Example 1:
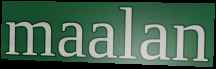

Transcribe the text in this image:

maalan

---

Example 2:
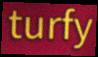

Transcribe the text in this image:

turfy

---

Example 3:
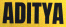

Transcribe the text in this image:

ADITYA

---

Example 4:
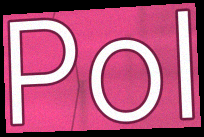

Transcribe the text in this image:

Pol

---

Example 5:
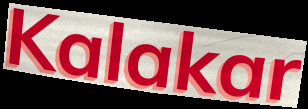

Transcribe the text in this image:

Kalakar